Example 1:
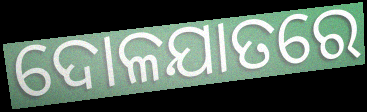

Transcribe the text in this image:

ଦୋଳଯାତରେ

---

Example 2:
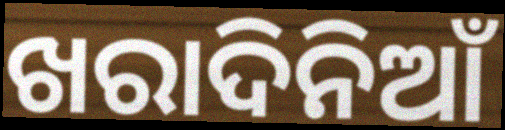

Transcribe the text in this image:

ଖରାଦିନିଆଁ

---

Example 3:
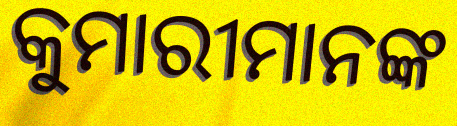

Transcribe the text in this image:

କୁମାରୀମାନଙ୍କ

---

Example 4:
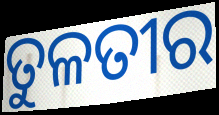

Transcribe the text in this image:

ତୁଳତୀର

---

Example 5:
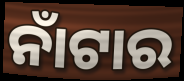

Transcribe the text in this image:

ନାଁଟାର